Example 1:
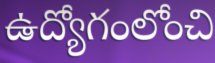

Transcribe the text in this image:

ఉద్యోగంలోంచి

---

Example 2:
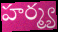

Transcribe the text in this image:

హర్మ్య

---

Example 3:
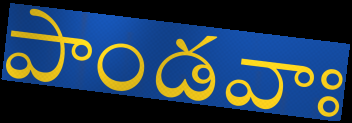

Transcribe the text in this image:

పాండవాః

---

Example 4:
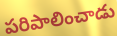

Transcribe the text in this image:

పరిపాలించాడు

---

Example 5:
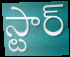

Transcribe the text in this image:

స్టార్